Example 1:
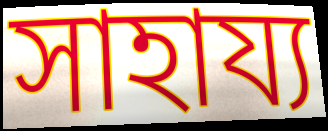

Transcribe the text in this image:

সাহায্য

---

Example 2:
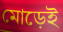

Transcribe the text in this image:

মোড়েই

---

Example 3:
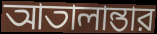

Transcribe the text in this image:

আতালান্তার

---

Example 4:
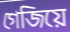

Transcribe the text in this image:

গেজিয়ে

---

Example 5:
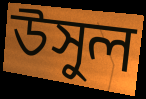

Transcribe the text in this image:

উসুল